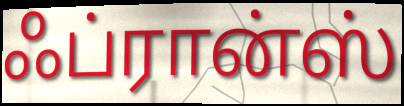
ஃப்ரான்ஸ்